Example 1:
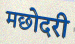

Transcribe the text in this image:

मछोदरी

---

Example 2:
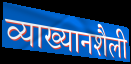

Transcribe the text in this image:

व्याख्यानशैली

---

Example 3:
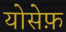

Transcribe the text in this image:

योसेफ़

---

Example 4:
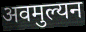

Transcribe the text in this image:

अवमुल्यन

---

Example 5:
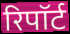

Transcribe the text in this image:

रिपॉर्ट